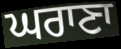
ਘਰਾਣਾ